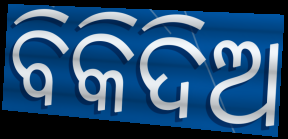
ବିକିଦିଅ